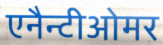
एनैन्टीओमर